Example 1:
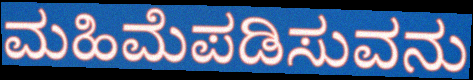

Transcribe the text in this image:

ಮಹಿಮೆಪಡಿಸುವನು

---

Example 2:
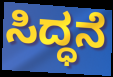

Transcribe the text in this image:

ಸಿದ್ಧನೆ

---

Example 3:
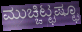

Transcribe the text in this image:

ಮುಚ್ಚಿಟ್ಟಷ್ಟೂ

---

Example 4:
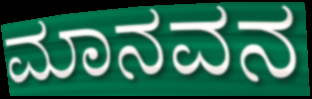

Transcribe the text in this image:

ಮಾನವನ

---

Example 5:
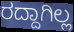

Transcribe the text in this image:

ರದ್ದಾಗಿಲ್ಲ